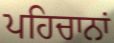
ਪਹਿਚਾਨਾਂ